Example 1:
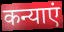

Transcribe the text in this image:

कन्याएं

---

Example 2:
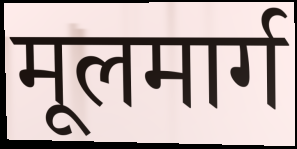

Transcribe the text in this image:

मूलमार्ग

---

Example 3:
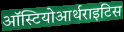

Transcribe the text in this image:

ऑस्टियोआर्थराइटिस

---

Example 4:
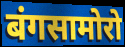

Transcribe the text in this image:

बंगसामोरो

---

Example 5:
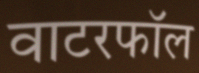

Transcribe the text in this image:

वाटरफॉल